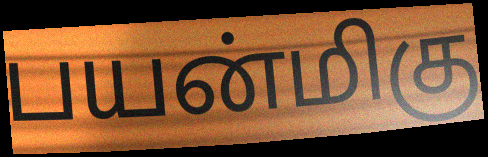
பயன்மிகு